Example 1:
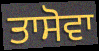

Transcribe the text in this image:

ਤਾਸੋਵਾ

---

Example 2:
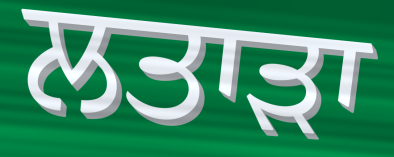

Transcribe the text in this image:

ਲਤਾੜਾ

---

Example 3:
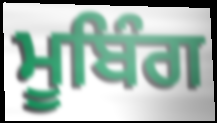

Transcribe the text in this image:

ਮੂਬਿੰਗ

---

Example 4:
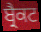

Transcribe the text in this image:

ਬ੍ਰੈਕਟ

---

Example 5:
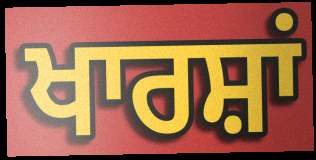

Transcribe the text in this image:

ਖਾਰਸ਼ਾਂ